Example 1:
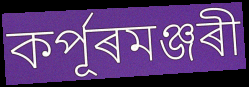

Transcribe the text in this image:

কৰ্পূৰমঞ্জৰী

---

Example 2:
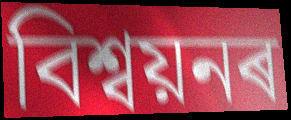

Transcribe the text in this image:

বিশ্বয়নৰ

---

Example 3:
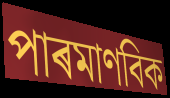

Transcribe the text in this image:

পাৰমাণবিক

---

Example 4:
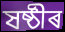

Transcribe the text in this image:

ষষ্ঠীৰ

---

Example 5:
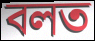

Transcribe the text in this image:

বলত